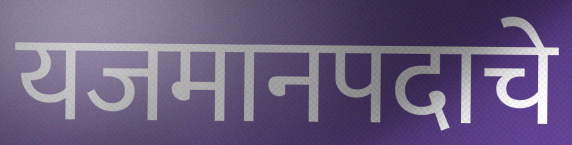
यजमानपदाचे